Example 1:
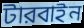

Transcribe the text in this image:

টারবাইন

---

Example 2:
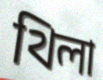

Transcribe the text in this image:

থিলা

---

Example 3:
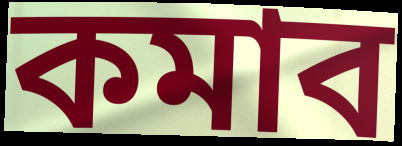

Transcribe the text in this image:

কমাব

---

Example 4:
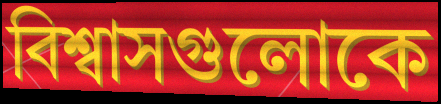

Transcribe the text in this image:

বিশ্বাসগুলোকে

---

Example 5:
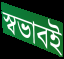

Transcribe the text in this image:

স্বভাবই